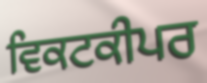
ਵਿਕਟਕੀਪਰ